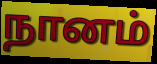
நானம்